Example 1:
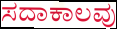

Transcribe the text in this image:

ಸದಾಕಾಲವು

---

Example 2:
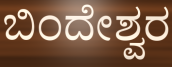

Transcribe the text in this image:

ಬಿಂದೇಶ್ವರ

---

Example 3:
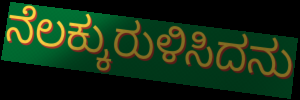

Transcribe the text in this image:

ನೆಲಕ್ಕುರುಳಿಸಿದನು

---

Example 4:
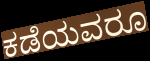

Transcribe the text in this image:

ಕಡೆಯವರೂ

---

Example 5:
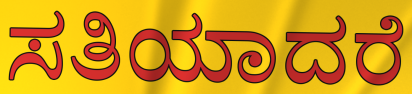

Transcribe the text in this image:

ಸತಿಯಾದರೆ